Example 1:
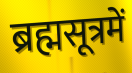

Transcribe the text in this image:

ब्रह्मसूत्रमें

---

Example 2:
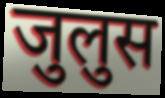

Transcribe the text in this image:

जुलुस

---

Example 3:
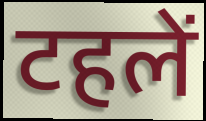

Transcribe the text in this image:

टहलें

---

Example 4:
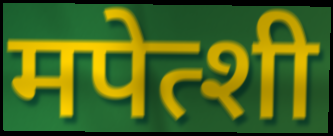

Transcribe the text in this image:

मपेत्शी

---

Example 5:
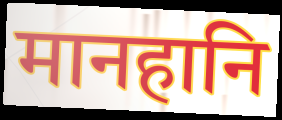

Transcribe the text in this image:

मानहानि